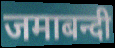
जमाबन्दी